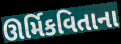
ઊર્મિકવિતાના